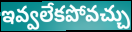
ఇవ్వలేకపోవచ్చు